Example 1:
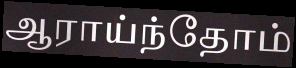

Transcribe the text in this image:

ஆராய்ந்தோம்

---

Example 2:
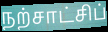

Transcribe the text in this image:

நற்சாட்சிப்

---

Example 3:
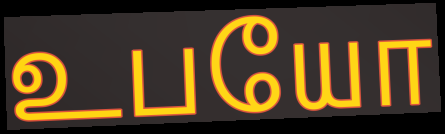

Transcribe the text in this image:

உபயோ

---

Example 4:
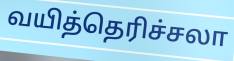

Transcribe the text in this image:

வயித்தெரிச்சலா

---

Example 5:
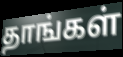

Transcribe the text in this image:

தாங்கள்